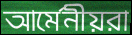
আর্মেনীয়রা